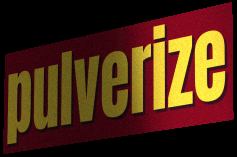
pulverize